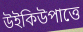
উইকিউপাত্তে